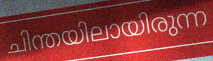
ചിന്തയിലായിരുന്ന